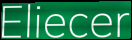
Eliecer